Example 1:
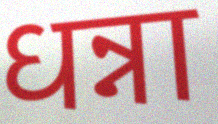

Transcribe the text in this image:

धन्ना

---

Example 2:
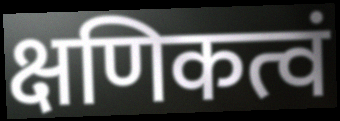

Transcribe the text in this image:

क्षणिकत्वं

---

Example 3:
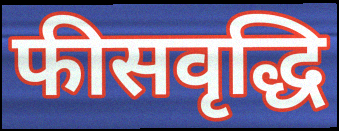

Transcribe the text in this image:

फीसवृद्धि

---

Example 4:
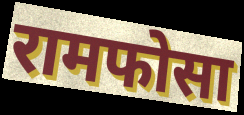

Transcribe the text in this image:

रामफोसा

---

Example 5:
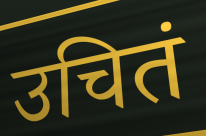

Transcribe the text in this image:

उचितं